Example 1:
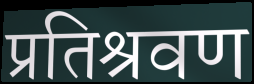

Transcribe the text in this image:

प्रतिश्रवण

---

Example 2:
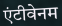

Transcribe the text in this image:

एंटीवेनम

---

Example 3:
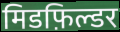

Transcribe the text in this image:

मिडफ़िल्डर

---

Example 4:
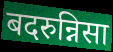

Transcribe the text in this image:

बदरुन्निसा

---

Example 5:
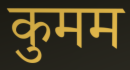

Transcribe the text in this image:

कुमम